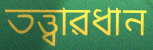
তত্ত্বাৱধান